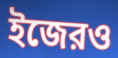
ইজেরও